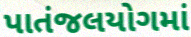
પાતંજલયોગમાં